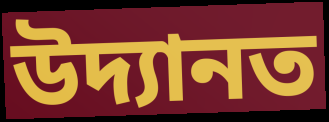
উদ্যানত